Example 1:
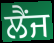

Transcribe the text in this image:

ਲੈਂਜ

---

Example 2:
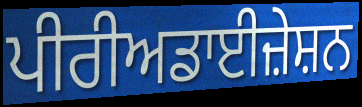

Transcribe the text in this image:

ਪੀਰੀਅਡਾਈਜ਼ੇਸ਼ਨ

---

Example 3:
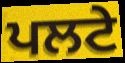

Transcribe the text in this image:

ਪਲਟੇ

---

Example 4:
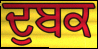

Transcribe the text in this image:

ਦੁਬਕ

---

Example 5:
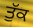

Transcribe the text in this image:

ਤੁੱਕ